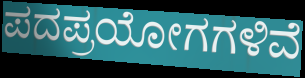
ಪದಪ್ರಯೋಗಗಳಿವೆ